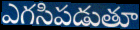
ఎగసిపడుతూ